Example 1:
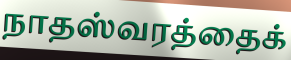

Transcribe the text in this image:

நாதஸ்வரத்தைக்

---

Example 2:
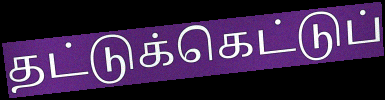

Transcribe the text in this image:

தட்டுக்கெட்டுப்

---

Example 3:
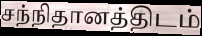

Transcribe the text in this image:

சந்நிதானத்திடம்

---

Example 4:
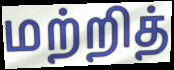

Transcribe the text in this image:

மற்றித்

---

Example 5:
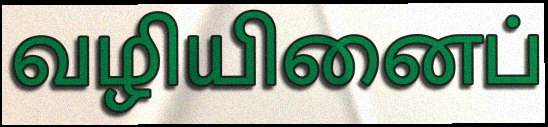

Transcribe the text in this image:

வழியினைப்